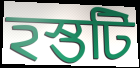
হস্তটি